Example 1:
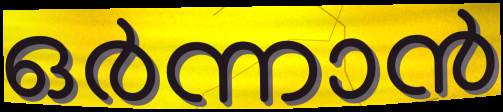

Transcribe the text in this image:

ഒർന്നാൻ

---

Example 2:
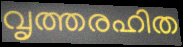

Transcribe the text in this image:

വൃത്തരഹിത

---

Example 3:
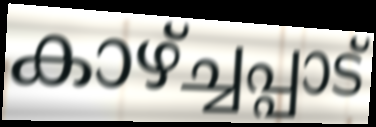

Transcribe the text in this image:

കാഴ്ച്ചപ്പാട്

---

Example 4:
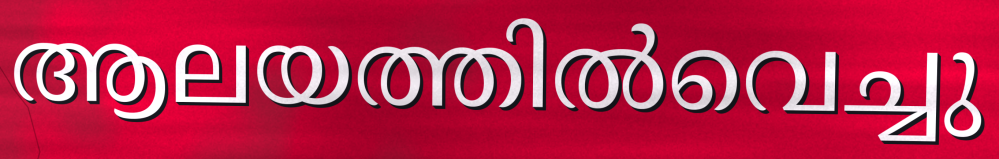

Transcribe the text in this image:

ആലയത്തിൽവെച്ചു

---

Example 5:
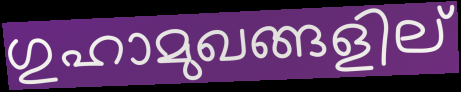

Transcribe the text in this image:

ഗുഹാമുഖങ്ങളില്